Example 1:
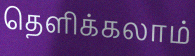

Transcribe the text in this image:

தெளிக்கலாம்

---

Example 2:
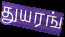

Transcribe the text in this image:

துயரங்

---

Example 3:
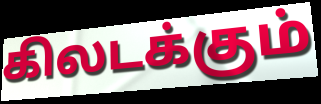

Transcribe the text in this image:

கிலடக்கும்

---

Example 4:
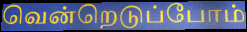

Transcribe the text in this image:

வென்றெடுப்போம்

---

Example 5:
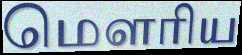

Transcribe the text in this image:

மெளரிய